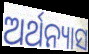
ଅର୍ଥନ୍ୟାସ